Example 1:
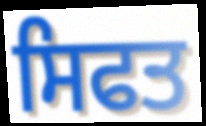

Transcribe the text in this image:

ਸਿਫਤ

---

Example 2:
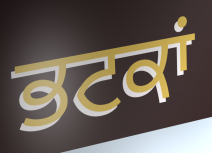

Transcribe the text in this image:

ਭਟਕਾਂ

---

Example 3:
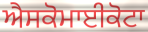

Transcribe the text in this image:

ਐਸਕੋਮਾਈਕੋਟਾ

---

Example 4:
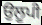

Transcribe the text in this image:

ਉਲੂਪੀ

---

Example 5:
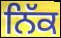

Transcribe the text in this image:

ਨਿੱਕ